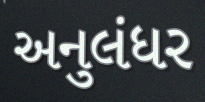
અનુલંધર